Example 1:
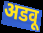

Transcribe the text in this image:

अडवू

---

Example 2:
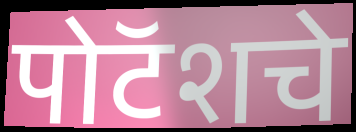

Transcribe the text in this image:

पोटॅशचे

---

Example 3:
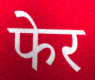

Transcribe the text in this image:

फेर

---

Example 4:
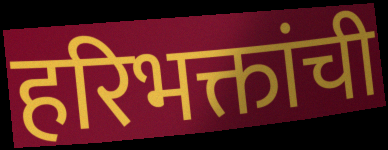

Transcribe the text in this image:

हरिभक्तांची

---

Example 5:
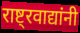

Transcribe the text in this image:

राष्ट्रवाद्यांनी